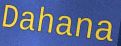
Dahana